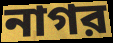
নাগর